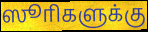
ஸூரிகளுக்கு